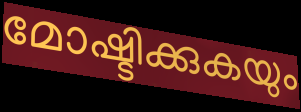
മോഷ്ടിക്കുകയും